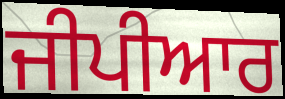
ਜੀਪੀਆਰ